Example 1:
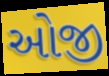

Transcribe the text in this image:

ઓજી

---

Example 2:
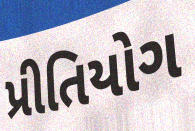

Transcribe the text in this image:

પ્રીતિયોગ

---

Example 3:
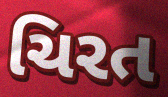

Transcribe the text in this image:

ચિરત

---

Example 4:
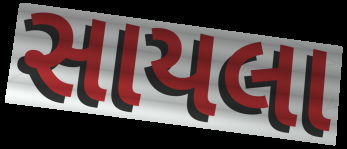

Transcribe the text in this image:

સાયલા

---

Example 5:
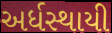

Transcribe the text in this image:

અર્ધસ્થાયી